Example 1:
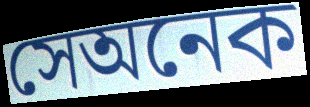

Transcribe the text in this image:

সেঅনেক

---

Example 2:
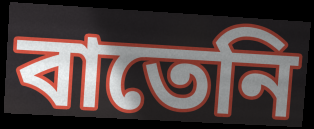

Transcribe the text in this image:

বাতেনি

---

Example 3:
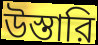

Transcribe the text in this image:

উস্তারি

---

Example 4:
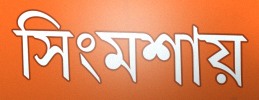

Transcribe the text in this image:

সিংমশায়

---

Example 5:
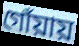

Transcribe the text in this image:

গোঁয়ায়